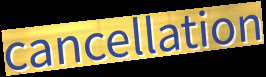
cancellation